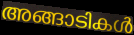
അങ്ങാടികൾ